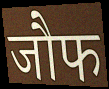
जौफ